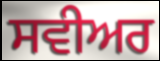
ਸਵੀਅਰ